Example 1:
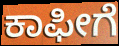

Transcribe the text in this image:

ಕಾಫೀಗೆ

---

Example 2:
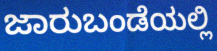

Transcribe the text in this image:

ಜಾರುಬಂಡೆಯಲ್ಲಿ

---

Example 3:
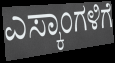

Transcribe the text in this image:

ಎಸ್ಕಾಂಗಳಿಗೆ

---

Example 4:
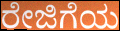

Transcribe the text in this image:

ರೇಜಿಗೆಯ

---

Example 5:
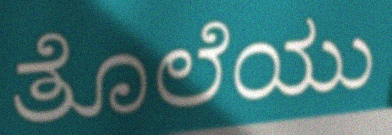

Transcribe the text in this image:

ತೊಲೆಯು